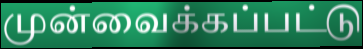
முன்வைக்கப்பட்டு